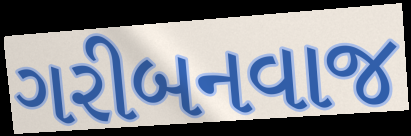
ગરીબનવાજ